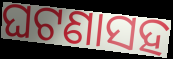
ଘଟଣାସହ